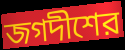
জগদীশের